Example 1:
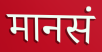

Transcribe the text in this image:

मानसं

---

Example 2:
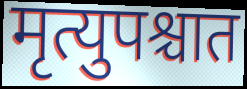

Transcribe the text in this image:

मृत्युपश्चात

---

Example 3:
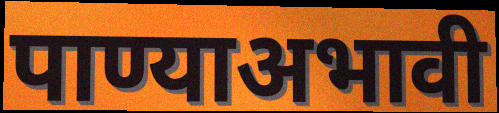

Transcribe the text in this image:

पाण्याअभावी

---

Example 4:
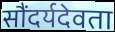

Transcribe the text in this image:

सौंदर्यदेवता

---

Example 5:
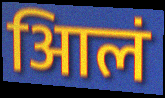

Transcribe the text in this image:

आिलं